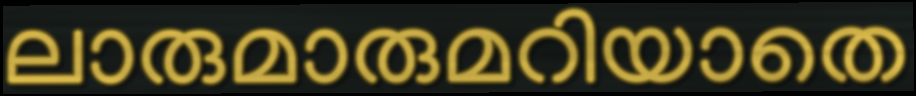
ലാരുമാരുമറിയാതെ